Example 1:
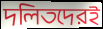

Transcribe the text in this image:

দলিতদেরই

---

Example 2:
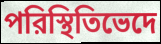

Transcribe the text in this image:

পরিস্থিতিভেদে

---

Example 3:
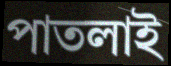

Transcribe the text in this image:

পাতলাই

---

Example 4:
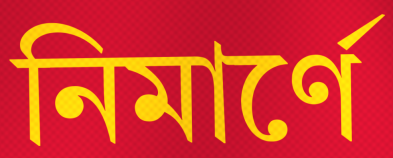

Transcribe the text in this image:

নিমার্ণে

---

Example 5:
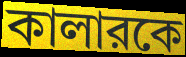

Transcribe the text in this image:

কালারকে